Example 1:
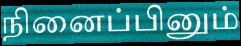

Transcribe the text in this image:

நினைப்பினும்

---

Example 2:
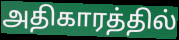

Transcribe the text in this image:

அதிகாரத்தில்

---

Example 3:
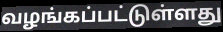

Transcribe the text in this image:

வழங்கப்பட்டுள்ளது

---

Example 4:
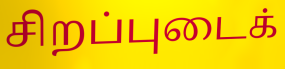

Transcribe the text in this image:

சிறப்புடைக்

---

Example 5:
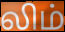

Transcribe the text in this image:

லிம்